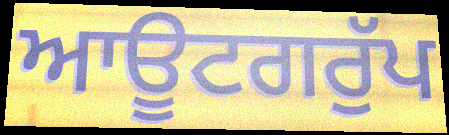
ਆਊਟਗਰੁੱਪ